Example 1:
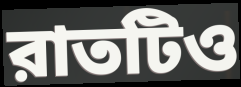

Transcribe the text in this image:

রাতটিও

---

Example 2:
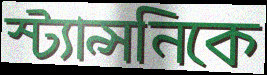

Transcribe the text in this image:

স্ট্যান্সনিকে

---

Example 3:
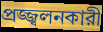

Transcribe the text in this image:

প্রজ্জ্বলনকারী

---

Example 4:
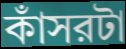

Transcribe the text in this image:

কাঁসরটা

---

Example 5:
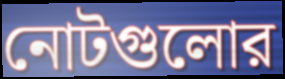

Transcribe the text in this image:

নোটগুলোর